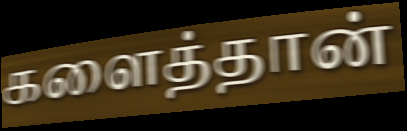
களைத்தான்